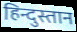
हिन्दुस्तान